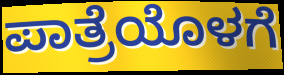
ಪಾತ್ರೆಯೊಳಗೆ